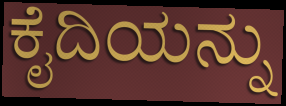
ಕೈದಿಯನ್ನು